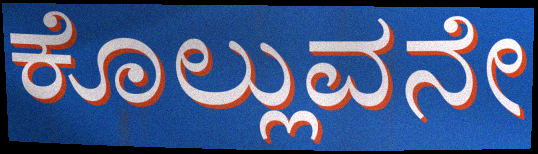
ಕೊಲ್ಲುವನೇ